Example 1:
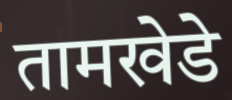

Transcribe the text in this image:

तामखेडे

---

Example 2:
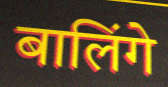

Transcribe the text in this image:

बालिंगे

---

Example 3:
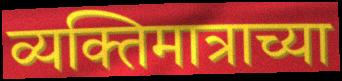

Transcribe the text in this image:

व्यक्तिमात्राच्या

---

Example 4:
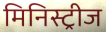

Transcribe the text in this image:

मिनिस्ट्रीज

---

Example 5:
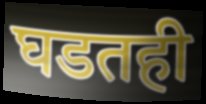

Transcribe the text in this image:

घडतही